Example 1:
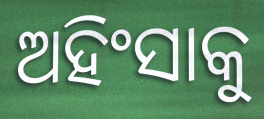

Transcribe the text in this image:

ଅହିଂସାକୁ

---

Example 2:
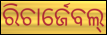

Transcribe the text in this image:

ରିଚାର୍ଜେବଲ୍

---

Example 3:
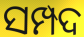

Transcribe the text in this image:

ସମ୍ପଦ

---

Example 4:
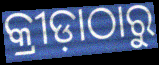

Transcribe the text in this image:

କ୍ରୀଡ଼ାଠାରୁ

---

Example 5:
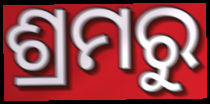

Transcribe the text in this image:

ଶ୍ରମରୁ